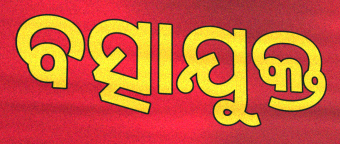
ବତ୍ସାଯୁକ୍ତ